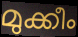
മുക്കീം